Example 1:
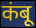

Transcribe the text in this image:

कंबू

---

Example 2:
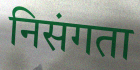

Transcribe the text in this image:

निसंगता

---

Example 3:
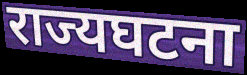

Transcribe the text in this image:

राज्यघटना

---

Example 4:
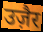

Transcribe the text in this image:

उज़ैर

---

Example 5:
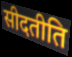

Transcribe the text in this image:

सीदतीति